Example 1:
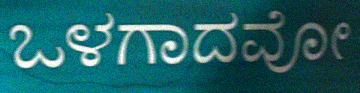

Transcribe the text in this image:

ಒಳಗಾದವೋ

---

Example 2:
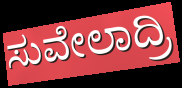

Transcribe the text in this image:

ಸುವೇಲಾದ್ರಿ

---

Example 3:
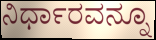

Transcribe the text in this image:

ನಿರ್ಧಾರವನ್ನೂ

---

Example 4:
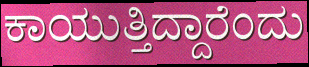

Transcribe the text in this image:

ಕಾಯುತ್ತಿದ್ದಾರೆಂದು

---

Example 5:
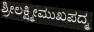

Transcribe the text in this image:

ಶ್ರೀಲಕ್ಷ್ಮೀಮುಖಪದ್ಮ